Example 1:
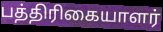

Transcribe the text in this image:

பத்திரிகையாளர்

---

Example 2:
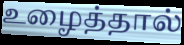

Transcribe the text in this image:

உழைத்தால்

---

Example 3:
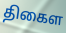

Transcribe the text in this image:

திகைள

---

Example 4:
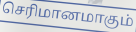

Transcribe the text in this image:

செரிமானமாகும்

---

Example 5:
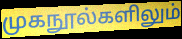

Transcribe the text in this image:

முகநூல்களிலும்